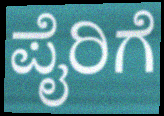
ಪೈರಿಗೆ